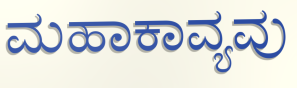
ಮಹಾಕಾವ್ಯವು